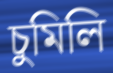
চুমিলি